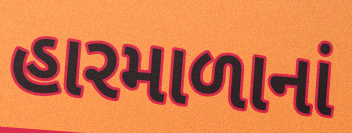
હારમાળાનાં